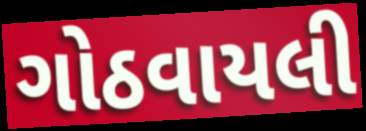
ગોઠવાયલી